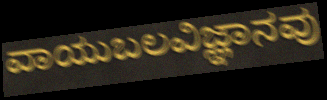
ವಾಯುಬಲವಿಜ್ಞಾನವು